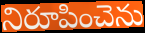
నిరూపించెను